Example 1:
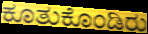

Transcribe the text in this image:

ಕೂತುಕೊಂಡಿರು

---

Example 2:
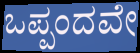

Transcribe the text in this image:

ಒಪ್ಪಂದವೇ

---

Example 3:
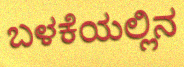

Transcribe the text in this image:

ಬಳಕೆಯಲ್ಲಿನ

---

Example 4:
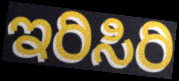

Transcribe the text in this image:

ಇರಿಸಿರಿ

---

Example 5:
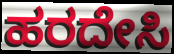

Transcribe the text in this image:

ಹರದೇಸಿ